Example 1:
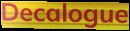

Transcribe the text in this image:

Decalogue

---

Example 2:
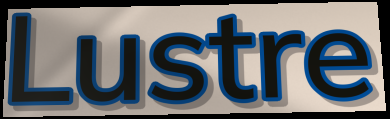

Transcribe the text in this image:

Lustre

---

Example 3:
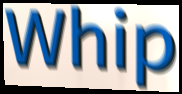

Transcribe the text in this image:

Whip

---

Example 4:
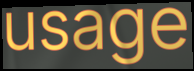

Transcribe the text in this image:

usage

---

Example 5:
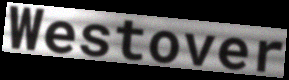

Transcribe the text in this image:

Westover